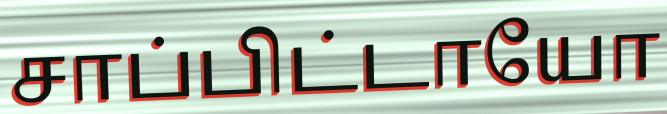
சாப்பிட்டாயோ